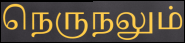
நெருநலும்